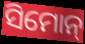
ସିମୋନ୍